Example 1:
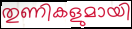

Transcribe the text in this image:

തുണികളുമായി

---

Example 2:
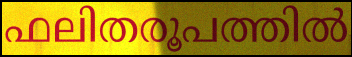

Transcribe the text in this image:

ഫലിതരൂപത്തിൽ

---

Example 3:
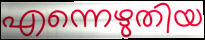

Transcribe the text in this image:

എന്നെഴുതിയ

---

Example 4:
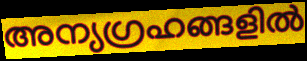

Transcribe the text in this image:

അന്യഗ്രഹങ്ങളിൽ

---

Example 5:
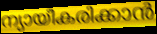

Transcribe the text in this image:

ന്യായീകരിക്കാൻ